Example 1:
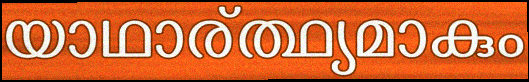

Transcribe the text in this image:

യാഥാര്ത്ഥ്യമാകും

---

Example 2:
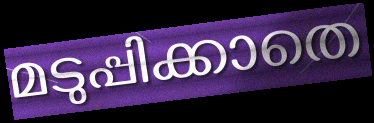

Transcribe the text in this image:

മടുപ്പിക്കാതെ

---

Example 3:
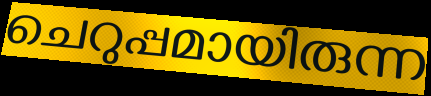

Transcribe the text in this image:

ചെറുപ്പമായിരുന്ന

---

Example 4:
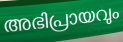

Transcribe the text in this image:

അഭിപ്രായവും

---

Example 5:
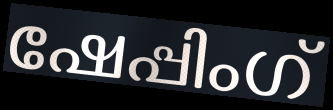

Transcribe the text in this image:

ഷേപ്പിംഗ്